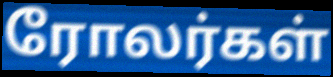
ரோலர்கள்